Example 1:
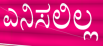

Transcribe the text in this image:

ಎನಿಸಲಿಲ್ಲ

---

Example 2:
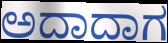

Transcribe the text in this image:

ಅದಾದಾಗ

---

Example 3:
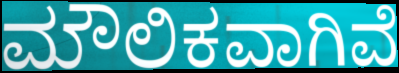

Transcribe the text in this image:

ಮೌಲಿಕವಾಗಿವೆ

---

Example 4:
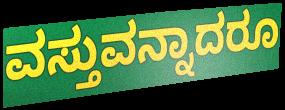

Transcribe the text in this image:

ವಸ್ತುವನ್ನಾದರೂ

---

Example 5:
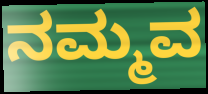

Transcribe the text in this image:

ನಮ್ಮವ